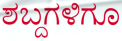
ಶಬ್ದಗಳಿಗೂ